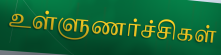
உள்ளுணர்ச்சிகள்